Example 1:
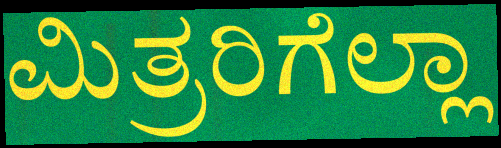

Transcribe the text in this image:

ಮಿತ್ರರಿಗೆಲ್ಲಾ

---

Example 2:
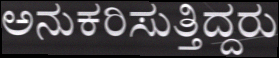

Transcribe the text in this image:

ಅನುಕರಿಸುತ್ತಿದ್ದರು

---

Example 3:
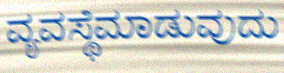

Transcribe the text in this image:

ವ್ಯವಸ್ಥೆಮಾಡುವುದು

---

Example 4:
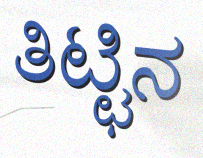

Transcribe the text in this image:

ತಿಟ್ಟಿನ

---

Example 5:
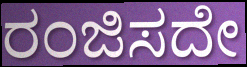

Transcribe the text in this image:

ರಂಜಿಸದೇ